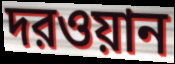
দরওয়ান